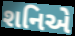
શનિએ